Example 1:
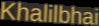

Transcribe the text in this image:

Khalilbhai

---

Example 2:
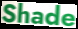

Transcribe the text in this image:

Shade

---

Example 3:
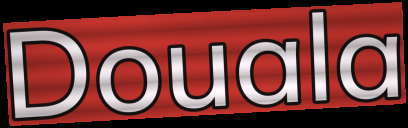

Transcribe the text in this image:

Douala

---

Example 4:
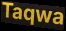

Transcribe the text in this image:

Taqwa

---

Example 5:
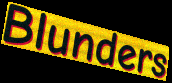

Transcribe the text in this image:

Blunders